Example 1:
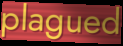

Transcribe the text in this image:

plagued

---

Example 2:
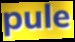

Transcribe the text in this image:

pule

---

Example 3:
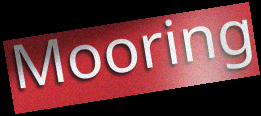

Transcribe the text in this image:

Mooring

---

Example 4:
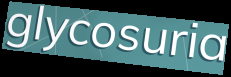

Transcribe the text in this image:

glycosuria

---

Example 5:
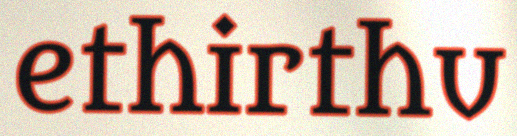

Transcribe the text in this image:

ethirthu